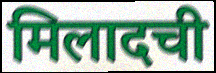
मिलादची